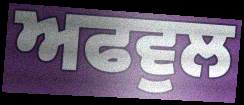
ਅਫਵੁਲ